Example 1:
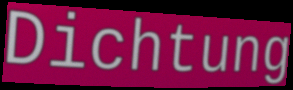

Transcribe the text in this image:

Dichtung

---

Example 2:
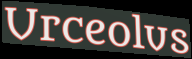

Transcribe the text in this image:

Urceolus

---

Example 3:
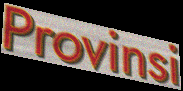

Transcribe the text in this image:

Provinsi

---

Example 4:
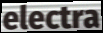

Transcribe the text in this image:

electra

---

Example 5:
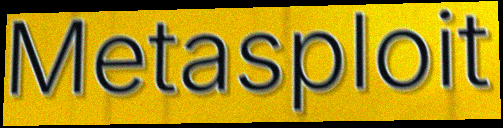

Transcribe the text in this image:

Metasploit